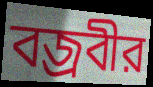
বজ্রবীর